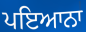
ਪਇਆਨਾ